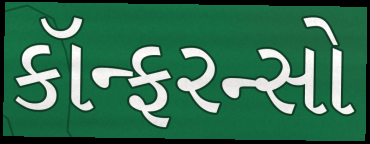
કૉન્ફરન્સો